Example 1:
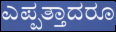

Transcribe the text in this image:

ಎಪ್ಪತ್ತಾದರೂ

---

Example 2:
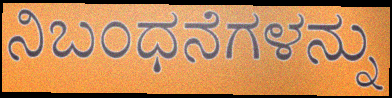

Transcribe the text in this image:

ನಿಬಂಧನೆಗಳನ್ನು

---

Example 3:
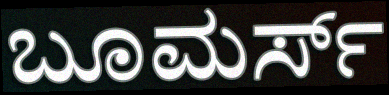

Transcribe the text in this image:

ಬೂಮರ್ಸ್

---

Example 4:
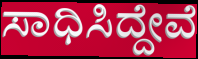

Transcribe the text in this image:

ಸಾಧಿಸಿದ್ದೇವೆ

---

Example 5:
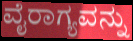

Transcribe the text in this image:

ವೈರಾಗ್ಯವನ್ನು